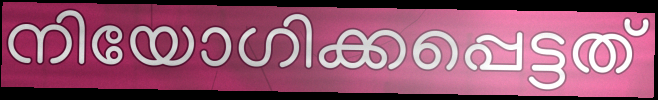
നിയോഗിക്കപ്പെട്ടത്